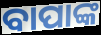
ବାପାଙ୍କ